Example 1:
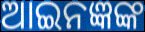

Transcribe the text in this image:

ଆଇନଜ୍ଞଙ୍କ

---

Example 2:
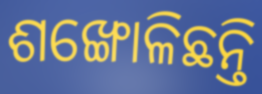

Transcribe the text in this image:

ଶଙ୍ଖୋଳିଛନ୍ତି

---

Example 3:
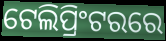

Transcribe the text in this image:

ଟେଲିପ୍ରିଂଟରରେ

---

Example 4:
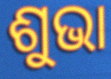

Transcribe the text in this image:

ଶୁଭା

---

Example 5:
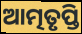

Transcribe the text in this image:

ଆତ୍ମତୃପ୍ତି